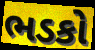
ભડકો